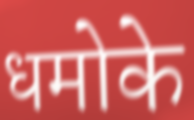
धमोके